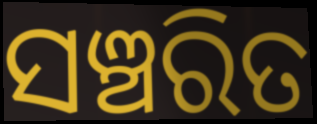
ସଞ୍ଚରିତ